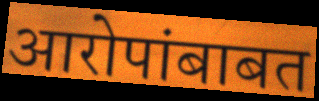
आरोपांबाबत